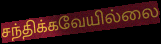
சந்திக்கவேயில்லை